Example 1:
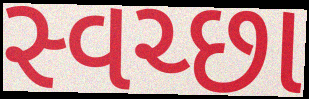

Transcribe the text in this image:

સ્વચ્છા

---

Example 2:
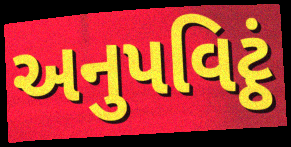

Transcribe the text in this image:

અનુપવિટ્ઠં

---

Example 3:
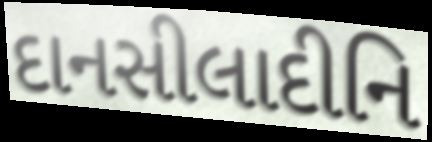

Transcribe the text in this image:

દાનસીલાદીનિ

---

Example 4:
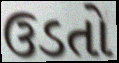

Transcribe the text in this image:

ઉડતો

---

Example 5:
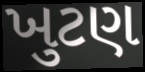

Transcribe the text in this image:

ખુટણ